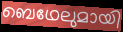
ബെഥേലുമായി